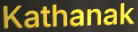
Kathanak